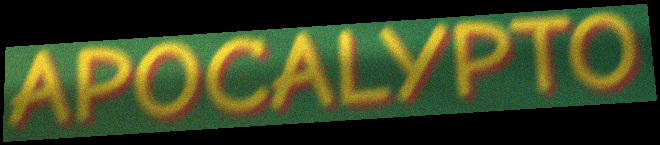
APOCALYPTO